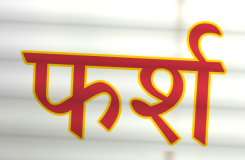
फर्श